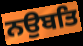
ਨਉਬਤਿ